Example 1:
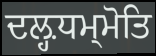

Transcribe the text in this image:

ਦਲ਼੍ਹਧਮ੍ਮੋਤਿ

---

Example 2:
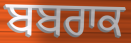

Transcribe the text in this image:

ਬਬਰਾਕ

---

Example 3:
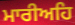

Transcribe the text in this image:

ਮਾਰੀਅਹਿ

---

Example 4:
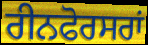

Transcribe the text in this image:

ਰੀਨਫੋਰਸਰਾਂ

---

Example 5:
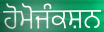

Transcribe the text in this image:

ਹੋਮੋਜੰਕਸ਼ਨ